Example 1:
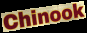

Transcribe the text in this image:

Chinook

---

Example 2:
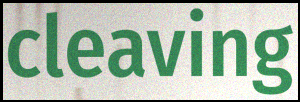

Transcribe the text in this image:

cleaving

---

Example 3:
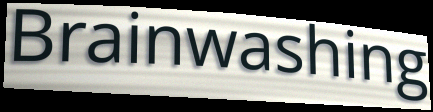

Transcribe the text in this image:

Brainwashing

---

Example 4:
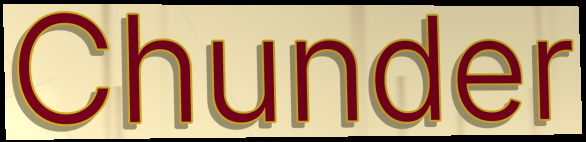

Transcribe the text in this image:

Chunder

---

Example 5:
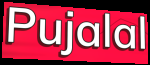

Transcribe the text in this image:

Pujalal